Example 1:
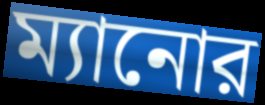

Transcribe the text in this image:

ম্যানোর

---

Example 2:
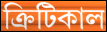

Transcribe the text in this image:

ক্রিটিকাল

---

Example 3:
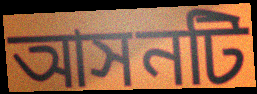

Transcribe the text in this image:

আসনটি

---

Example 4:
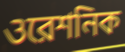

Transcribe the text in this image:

ওরেশনিক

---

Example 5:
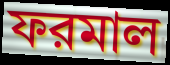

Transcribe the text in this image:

ফরমাল